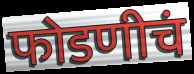
फोडणीचं